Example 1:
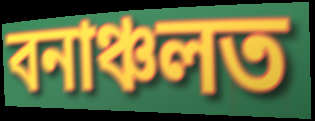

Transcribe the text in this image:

বনাঞ্চলত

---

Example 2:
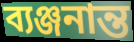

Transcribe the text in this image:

ব্যঞ্জনান্ত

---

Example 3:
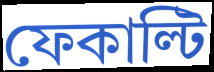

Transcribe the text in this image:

ফেকাল্টি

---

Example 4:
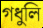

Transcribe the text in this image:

গধুলি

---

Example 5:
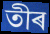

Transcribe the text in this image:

তীৰ